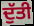
ਦੁੱਤੀ